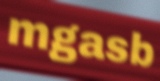
mgasb